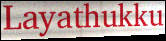
Layathukku